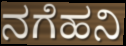
ನಗೆಹನಿ